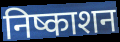
निष्काशन